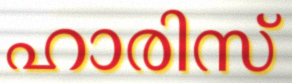
ഹാരിസ്